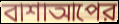
বাশাআপের